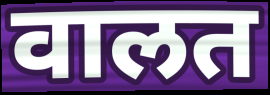
वालत